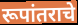
रूपांतराचे